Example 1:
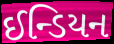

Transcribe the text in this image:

ઈન્ડિયન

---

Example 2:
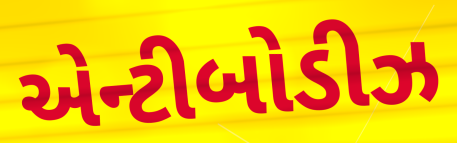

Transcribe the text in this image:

એન્ટીબોડીઝ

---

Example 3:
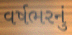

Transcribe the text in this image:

વર્ષભરનું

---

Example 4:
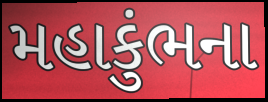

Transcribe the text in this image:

મહાકુંભના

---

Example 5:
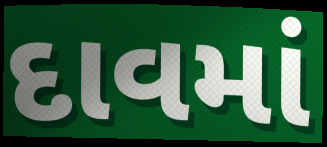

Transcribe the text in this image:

દાવમાં